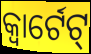
କ୍ୱାର୍ଟେଟ୍